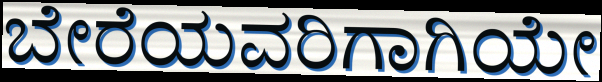
ಬೇರೆಯವರಿಗಾಗಿಯೇ